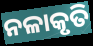
ନଳାକୃତି